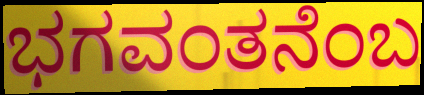
ಭಗವಂತನೆಂಬ